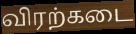
விரற்கடை